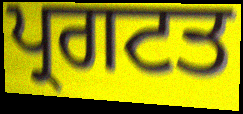
ਪ੍ਰਗਟਤ